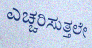
ಎಚ್ಚರಿಸುತ್ತಲೇ